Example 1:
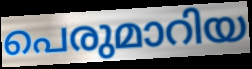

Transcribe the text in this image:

പെരുമാറിയ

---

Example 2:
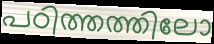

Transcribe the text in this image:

പഠിത്തത്തിലോ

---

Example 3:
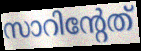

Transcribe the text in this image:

സാറിന്റേത്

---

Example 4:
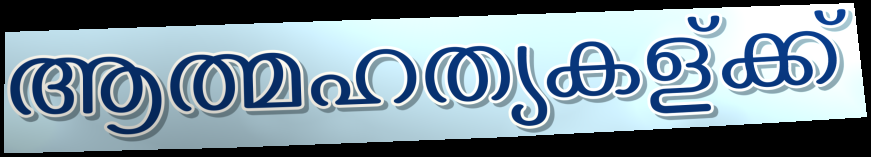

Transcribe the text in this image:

ആത്മഹത്യകള്ക്ക്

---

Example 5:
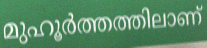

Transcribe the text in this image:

മുഹൂർത്തത്തിലാണ്